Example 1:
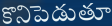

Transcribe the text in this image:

కొనిపెడుతూ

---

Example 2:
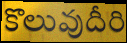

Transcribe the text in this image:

కొలువుదీరి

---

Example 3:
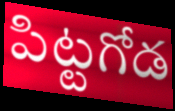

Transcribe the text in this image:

పిట్టగోడ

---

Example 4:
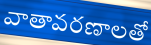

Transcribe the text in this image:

వాతావరణాలతో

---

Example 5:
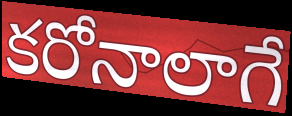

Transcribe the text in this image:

కరోనాలాగే